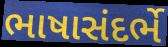
ભાષાસંદર્ભે